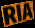
RIA